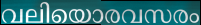
വലിയൊരവസരം